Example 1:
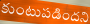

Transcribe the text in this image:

కుంటుపడిందని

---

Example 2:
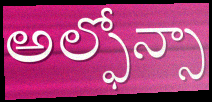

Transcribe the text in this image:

అల్ఫోన్సా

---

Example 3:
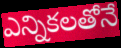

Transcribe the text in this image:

ఎన్నికలతోనే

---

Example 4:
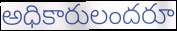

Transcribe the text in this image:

అధికారులందరూ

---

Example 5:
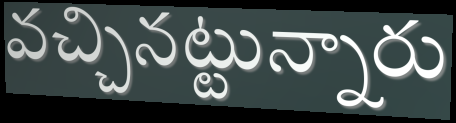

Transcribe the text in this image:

వచ్చినట్టున్నారు